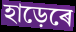
হাড়েৰে